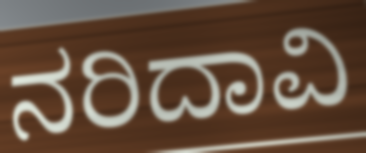
ನರಿದಾವಿ